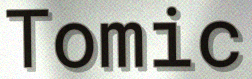
Tomic